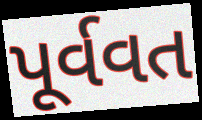
પૂર્વવત